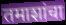
तमाशांचा